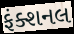
ફંક્શનલ